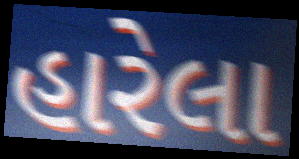
હારેલા